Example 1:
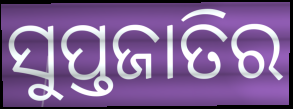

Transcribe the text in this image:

ସୁପ୍ତଜାତିର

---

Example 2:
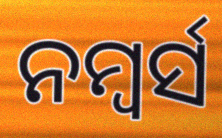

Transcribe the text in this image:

ନମ୍ୱର୍ସ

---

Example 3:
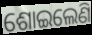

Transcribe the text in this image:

ଶୋଇଲେଣି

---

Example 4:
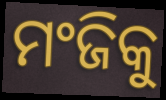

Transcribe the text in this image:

ମଂଜିକୁ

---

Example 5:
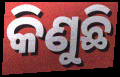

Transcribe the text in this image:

କିଣୁଛି